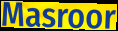
Masroor